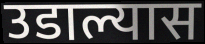
उडाल्यास